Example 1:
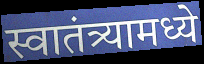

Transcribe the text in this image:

स्वातंत्र्यामध्ये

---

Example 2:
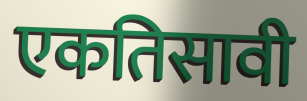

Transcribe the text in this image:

एकतिसावी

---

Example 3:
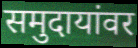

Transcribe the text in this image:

समुदायांवर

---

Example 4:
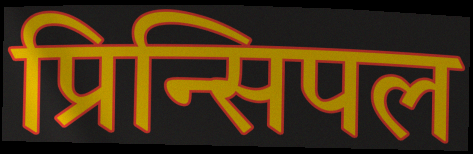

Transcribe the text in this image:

प्रिन्सिपल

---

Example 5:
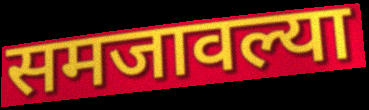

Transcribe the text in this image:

समजावल्या